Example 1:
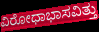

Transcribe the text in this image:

ವಿರೋಧಾಭಾಸವಿತ್ತು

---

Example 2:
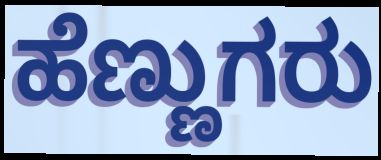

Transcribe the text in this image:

ಹೆಣ್ಣುಗರು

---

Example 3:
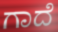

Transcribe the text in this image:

ಗಾದೆ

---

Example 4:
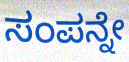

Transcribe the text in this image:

ಸಂಪನ್ನೇ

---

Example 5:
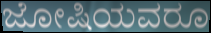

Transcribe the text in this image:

ಜೋಷಿಯವರೂ